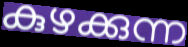
കുഴക്കുന്ന